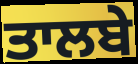
ਤਾਲਬੇ